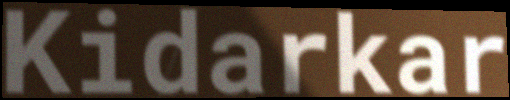
Kidarkar